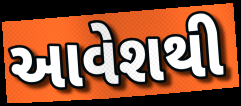
આવેશથી